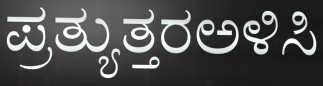
ಪ್ರತ್ಯುತ್ತರಅಳಿಸಿ